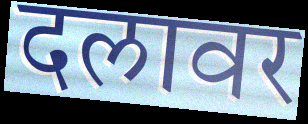
दलावर